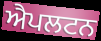
ਐਪਲਟਨ